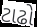
ટાઢો